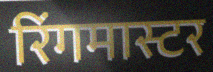
रिंगमास्टर